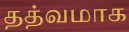
தத்வமாக